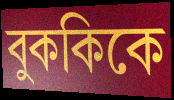
বুককিকে